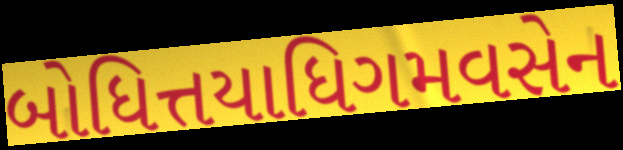
બોધિત્તયાધિગમવસેન